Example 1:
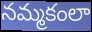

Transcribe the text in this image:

నమ్మకంలా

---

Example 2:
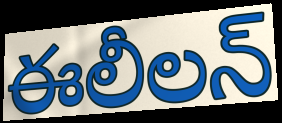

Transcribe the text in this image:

ఈలీలన్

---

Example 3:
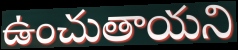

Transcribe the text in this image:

ఉంచుతాయని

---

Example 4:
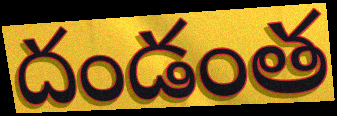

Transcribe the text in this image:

దండంత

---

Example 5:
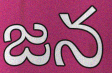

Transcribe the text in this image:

జన